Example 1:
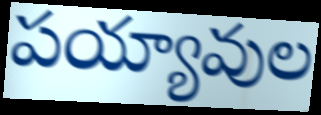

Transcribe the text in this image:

పయ్యావుల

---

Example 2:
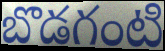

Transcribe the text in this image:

బొడగంటి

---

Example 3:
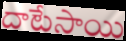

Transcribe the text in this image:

దాటేసాయి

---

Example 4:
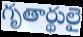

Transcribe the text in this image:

గృతార్థులై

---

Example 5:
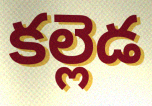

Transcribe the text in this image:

కల్లెడ